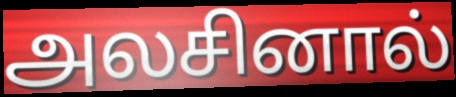
அலசினால்